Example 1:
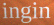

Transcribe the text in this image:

ingin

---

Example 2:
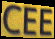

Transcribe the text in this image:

CEE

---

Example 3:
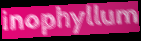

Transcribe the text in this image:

inophyllum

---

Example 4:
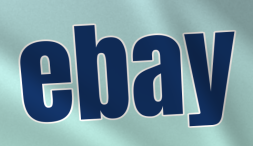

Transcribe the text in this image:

ebay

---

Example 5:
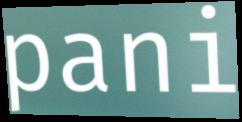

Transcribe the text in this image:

pani